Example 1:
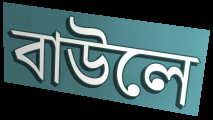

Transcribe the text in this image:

বাউলে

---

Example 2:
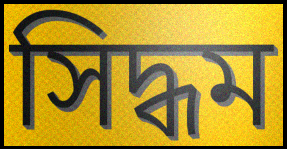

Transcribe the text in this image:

সিদ্ধম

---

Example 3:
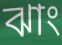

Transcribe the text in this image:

ঝাং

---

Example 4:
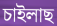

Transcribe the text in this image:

চাইলাছ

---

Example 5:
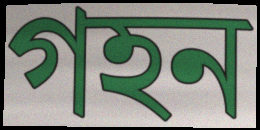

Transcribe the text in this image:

গহন